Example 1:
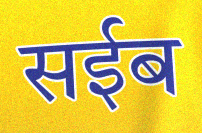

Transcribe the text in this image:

सईब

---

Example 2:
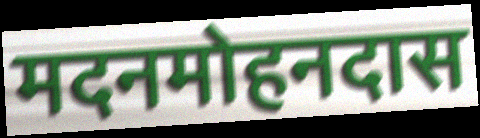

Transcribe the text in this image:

मदनमोहनदास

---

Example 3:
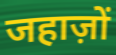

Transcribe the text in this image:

जहाज़ों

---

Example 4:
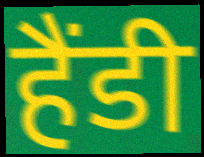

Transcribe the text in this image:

हैंडी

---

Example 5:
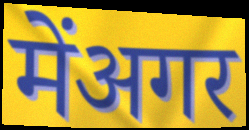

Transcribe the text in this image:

मेंअगर